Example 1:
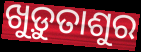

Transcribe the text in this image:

ଖୁଡ଼ୁତାଶୁର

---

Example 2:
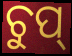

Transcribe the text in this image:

ଚୁପ୍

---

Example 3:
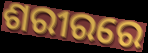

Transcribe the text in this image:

ଶରୀରରେ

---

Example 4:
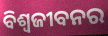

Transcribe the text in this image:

ବିଶ୍ଵଜୀବନର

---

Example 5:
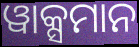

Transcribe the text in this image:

ୱାକ୍ସମାନ